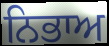
ਨਿਭਾਅ